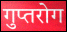
गुप्तरोग